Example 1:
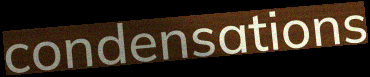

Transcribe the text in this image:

condensations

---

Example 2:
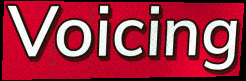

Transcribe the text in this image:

Voicing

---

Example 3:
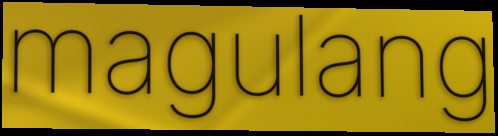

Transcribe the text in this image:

magulang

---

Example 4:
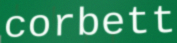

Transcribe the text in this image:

corbett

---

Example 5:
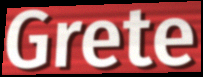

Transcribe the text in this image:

Grete